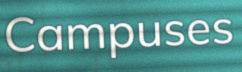
Campuses